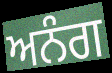
ਅਨੰਗ